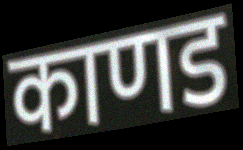
काणड